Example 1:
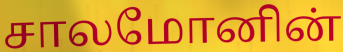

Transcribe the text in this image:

சாலமோனின்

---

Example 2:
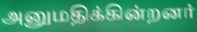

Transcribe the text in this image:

அனுமதிக்கின்றனர்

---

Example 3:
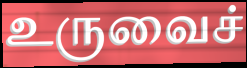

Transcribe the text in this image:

உருவைச்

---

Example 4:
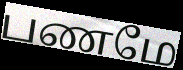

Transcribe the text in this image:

பணமே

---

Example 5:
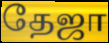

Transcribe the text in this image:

தேஜா